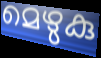
മെഴുകു